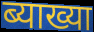
ब्याख्या